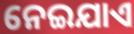
ନେଇଯାଏ